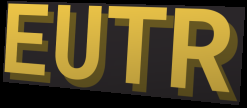
EUTR